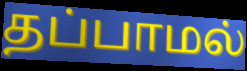
தப்பாமல்